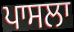
ਪਾਸਲਾ